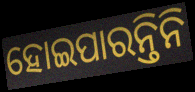
ହୋଇପାରନ୍ତିନି